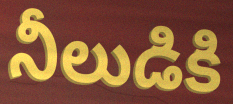
నీలుడికి